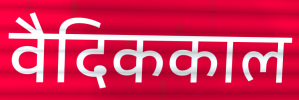
वैदिककाल